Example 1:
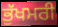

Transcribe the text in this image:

ਭੁੱਖਮਰੀ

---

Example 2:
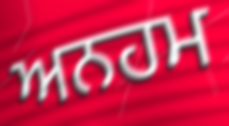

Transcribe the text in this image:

ਅਨਹਮ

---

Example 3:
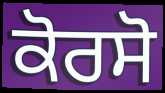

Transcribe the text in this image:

ਕੋਰਸੋ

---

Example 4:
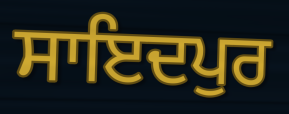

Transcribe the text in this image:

ਸਾਇਦਪੁਰ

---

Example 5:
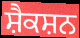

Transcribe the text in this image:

ਸ਼ੈਕਸ਼ਨ